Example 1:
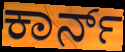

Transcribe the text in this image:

ಕಾರ್ನ್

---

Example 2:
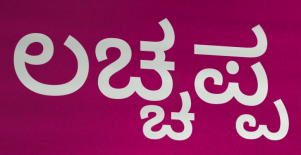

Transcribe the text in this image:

ಲಚ್ಚಪ್ಪ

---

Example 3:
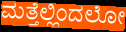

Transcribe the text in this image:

ಮತ್ತೆಲ್ಲಿಂದಲೋ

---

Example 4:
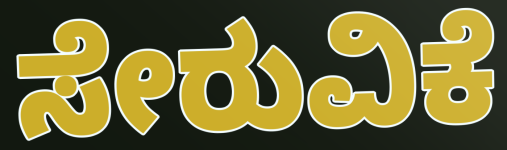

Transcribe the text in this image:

ಸೇರುವಿಕೆ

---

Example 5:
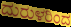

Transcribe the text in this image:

ದುರುಳರಿಂದ